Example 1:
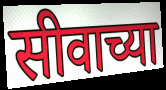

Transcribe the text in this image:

सीवाच्या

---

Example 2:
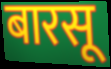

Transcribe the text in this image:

बारसू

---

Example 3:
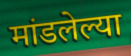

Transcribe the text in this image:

मांडलेल्या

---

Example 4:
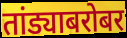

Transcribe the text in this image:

तांड्याबरोबर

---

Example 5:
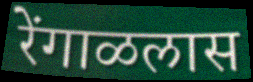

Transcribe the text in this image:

रेंगाळलास